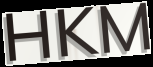
HKM